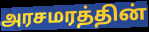
அரசமரத்தின்